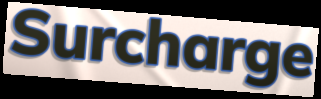
Surcharge